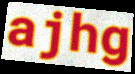
ajhg